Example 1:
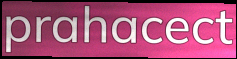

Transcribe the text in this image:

prahacect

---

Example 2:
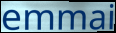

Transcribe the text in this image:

emmai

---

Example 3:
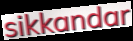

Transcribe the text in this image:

sikkandar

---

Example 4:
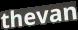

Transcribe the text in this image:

thevan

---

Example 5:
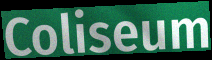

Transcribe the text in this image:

Coliseum